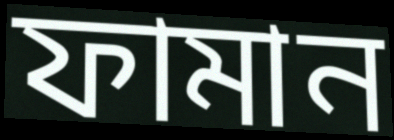
ফামান